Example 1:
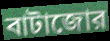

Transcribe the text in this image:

বাটাজোর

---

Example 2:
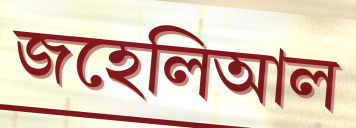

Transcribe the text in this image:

জহেলিআল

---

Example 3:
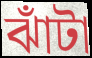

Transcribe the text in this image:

ঝাঁটা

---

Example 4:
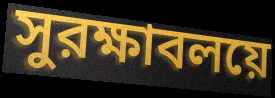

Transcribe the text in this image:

সুরক্ষাবলয়ে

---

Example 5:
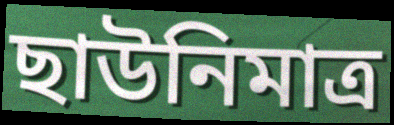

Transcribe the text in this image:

ছাউনিমাত্র